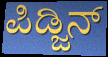
ಪಿಡ್ಜಿನ್